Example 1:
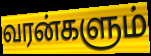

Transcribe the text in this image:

வரன்களும்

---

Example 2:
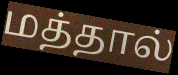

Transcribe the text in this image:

மத்தால்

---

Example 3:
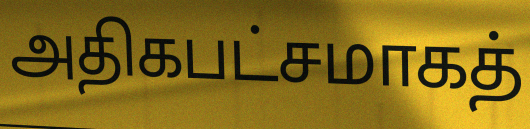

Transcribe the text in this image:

அதிகபட்சமாகத்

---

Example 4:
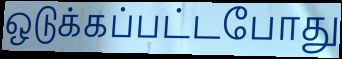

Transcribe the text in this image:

ஒடுக்கப்பட்டபோது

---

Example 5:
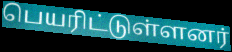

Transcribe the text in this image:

பெயரிட்டுள்ளனர்